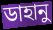
ডাহানু